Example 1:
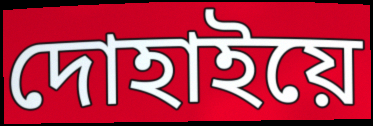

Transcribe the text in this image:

দোহাইয়ে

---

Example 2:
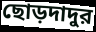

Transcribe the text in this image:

ছোড়দাদুর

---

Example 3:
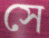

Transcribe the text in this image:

সে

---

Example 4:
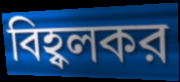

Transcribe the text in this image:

বিহ্বলকর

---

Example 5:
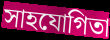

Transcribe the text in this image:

সাহযোগিতা